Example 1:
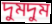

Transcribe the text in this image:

দুমদুম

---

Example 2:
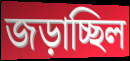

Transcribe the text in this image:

জড়াচ্ছিল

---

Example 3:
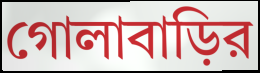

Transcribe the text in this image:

গোলাবাড়ির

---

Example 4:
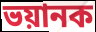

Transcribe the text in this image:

ভয়ানক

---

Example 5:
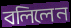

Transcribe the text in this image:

বলিলেন